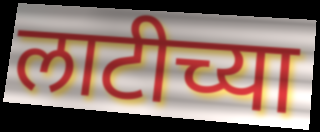
लाटीच्या